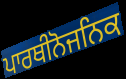
ਪਾਰਥੀਨੋਜਨਿਕ